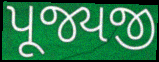
પૂજ્યજી